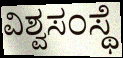
ವಿಶ್ವಸಂಸ್ಥೆ